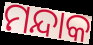
ମନ୍ଦାକ